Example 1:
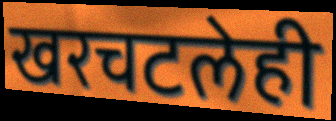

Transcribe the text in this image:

खरचटलेही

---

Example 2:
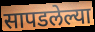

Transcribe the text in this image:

सापडलेल्या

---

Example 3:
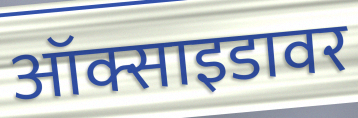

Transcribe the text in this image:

ऑक्साइडावर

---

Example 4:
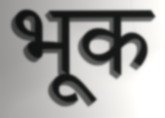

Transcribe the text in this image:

भूक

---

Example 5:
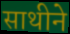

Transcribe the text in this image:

साथीने